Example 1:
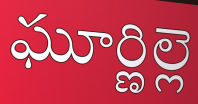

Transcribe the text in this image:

ఘూర్ణిల్లె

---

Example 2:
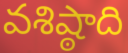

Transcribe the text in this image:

వశిష్ఠాది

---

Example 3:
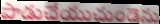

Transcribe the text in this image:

పాడుచేయుచుండెను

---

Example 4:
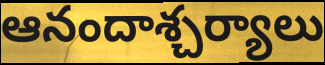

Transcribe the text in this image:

ఆనందాశ్చర్యాలు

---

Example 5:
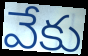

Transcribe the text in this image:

వేకు